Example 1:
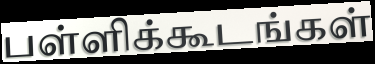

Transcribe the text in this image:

பள்ளிக்கூடங்கள்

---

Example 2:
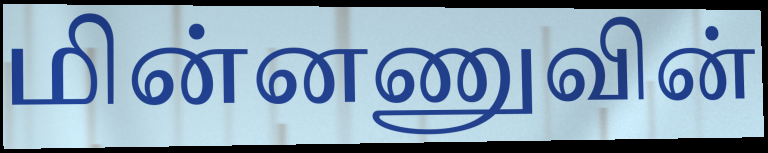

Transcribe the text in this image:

மின்னணுவின்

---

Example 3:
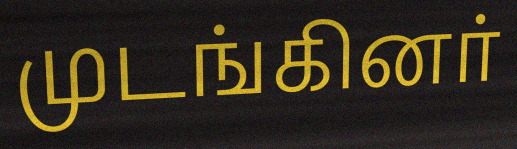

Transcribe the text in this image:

முடங்கினர்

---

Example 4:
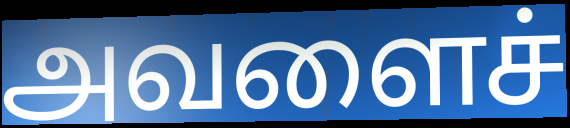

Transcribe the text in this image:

அவளைச்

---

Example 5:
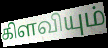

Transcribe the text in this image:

கிளவியும்